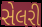
સેલરી